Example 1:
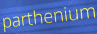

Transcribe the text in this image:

parthenium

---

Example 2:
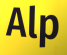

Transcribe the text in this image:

Alp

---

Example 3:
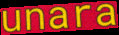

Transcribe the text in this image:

unara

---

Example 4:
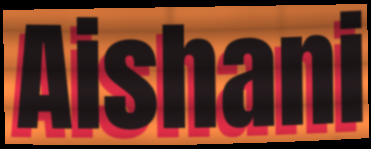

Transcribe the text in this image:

Aishani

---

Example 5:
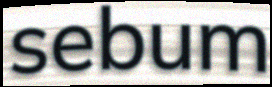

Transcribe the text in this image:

sebum